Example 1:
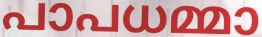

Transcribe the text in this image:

പാപധമ്മാ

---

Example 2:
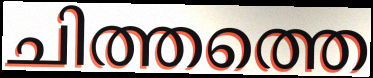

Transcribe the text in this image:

ചിത്തത്തെ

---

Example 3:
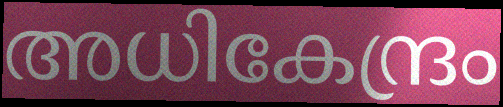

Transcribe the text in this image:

അധികേന്ദ്രം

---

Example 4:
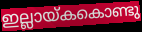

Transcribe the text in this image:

ഇല്ലായ്കകൊണ്ടു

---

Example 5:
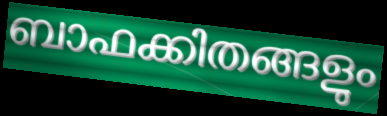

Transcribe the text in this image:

ബാഫക്കിതങ്ങളും